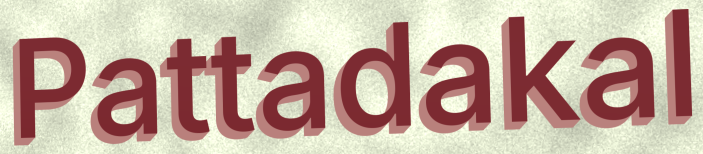
Pattadakal